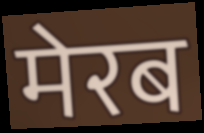
मेरब